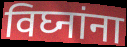
विघ्नांना